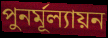
পুনর্মূল্যায়ন